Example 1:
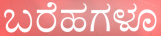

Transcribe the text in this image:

ಬರೆಹಗಳೂ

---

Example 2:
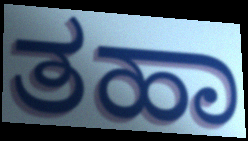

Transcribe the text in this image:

ತಹಾ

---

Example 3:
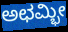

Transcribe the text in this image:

ಅಛಮ್ಭೀ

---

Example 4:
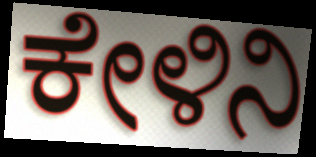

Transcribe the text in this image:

ಕೇಳಿನಿ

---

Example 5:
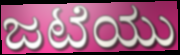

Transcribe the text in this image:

ಜಟೆಯು